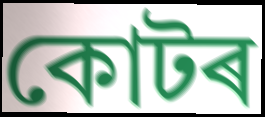
কোটৰ